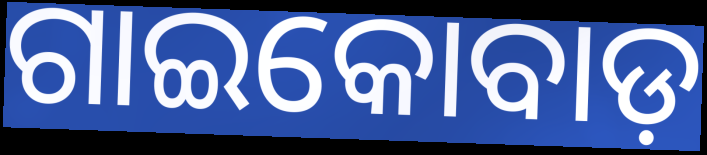
ଗାଇକୋବାଡ଼